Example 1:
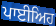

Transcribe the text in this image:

ਪਾਈਅਿਹ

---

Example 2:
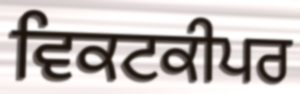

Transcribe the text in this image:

ਵਿਕਟਕੀਪਰ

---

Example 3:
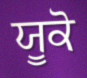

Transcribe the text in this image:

ਯੂਕੋ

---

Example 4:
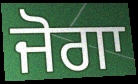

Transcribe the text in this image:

ਜੋਗਾ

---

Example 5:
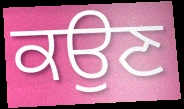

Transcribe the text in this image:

ਕਉਣ